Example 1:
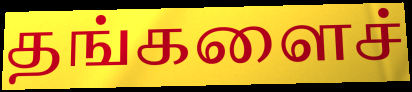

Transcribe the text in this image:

தங்களைச்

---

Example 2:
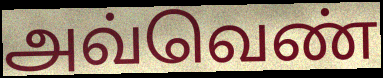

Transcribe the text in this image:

அவ்வெண்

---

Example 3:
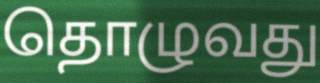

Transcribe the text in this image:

தொழுவது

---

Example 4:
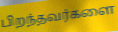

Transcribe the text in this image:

பிறந்தவர்களை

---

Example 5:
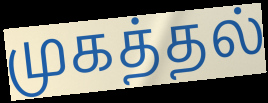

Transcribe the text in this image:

முகத்தல்